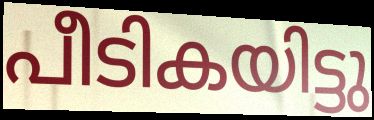
പീടികയിട്ടു